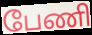
பேணி